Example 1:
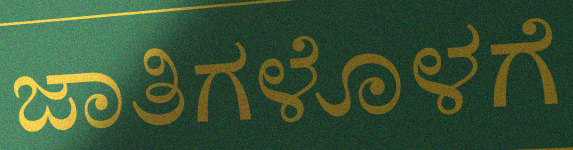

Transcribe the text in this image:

ಜಾತಿಗಳೊಳಗೆ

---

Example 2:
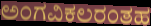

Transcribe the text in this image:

ಅಂಗವಿಕಲರಂತಹ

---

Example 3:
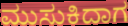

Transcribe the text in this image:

ಮುಸುಕಿದಾಗ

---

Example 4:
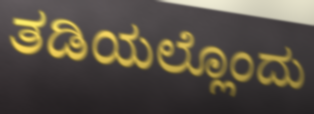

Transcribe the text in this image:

ತಡಿಯಲ್ಲೊಂದು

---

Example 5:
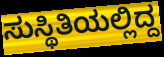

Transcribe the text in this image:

ಸುಸ್ಥಿತಿಯಲ್ಲಿದ್ದ